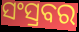
ସଂସ୍ରବର